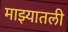
माझ्यातली